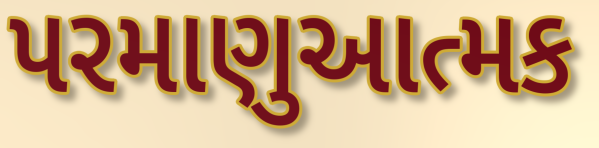
પરમાણુઆત્મક